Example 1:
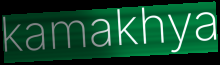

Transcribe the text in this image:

kamakhya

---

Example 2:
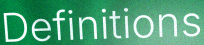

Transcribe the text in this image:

Definitions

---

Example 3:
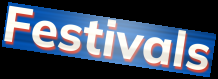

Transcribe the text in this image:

Festivals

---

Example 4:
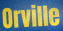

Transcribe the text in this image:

Orville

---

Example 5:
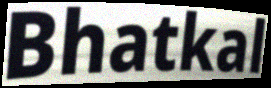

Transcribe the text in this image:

Bhatkal